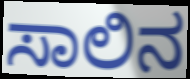
ಸಾಲಿನ